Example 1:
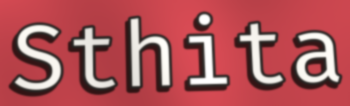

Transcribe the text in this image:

Sthita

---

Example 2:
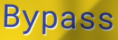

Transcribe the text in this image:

Bypass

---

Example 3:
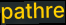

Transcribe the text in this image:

pathre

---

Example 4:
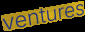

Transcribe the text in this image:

ventures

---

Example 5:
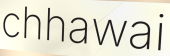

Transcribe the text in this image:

chhawai